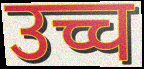
उच्च